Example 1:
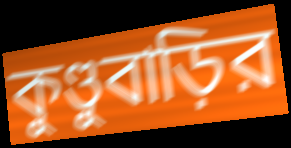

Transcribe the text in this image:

কুণ্ডুবাড়ির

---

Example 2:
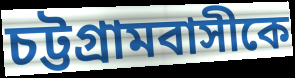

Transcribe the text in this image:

চট্টগ্রামবাসীকে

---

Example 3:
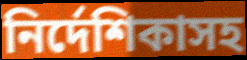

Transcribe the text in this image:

নির্দেশিকাসহ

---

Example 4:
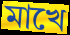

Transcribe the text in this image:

মাখে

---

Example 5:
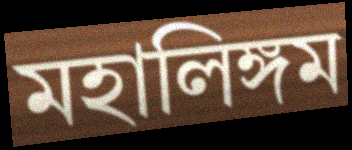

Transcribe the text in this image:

মহালিঙ্গম